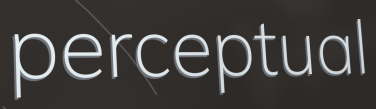
perceptual